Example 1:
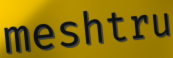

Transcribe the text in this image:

meshtru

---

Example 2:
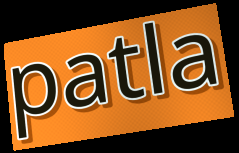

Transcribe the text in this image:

patla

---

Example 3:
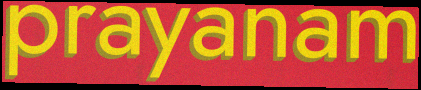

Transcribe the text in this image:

prayanam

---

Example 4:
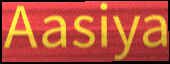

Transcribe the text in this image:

Aasiya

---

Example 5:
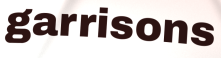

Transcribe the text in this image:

garrisons